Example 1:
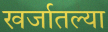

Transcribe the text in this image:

खर्जातल्या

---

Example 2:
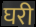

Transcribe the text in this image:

घरी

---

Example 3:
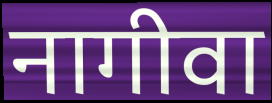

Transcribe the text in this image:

नागीवा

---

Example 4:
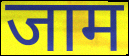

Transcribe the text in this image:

जाम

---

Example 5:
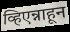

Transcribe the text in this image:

व्हिएन्नाहून